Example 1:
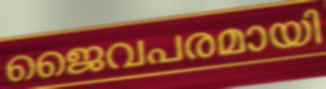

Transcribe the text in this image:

ജൈവപരമായി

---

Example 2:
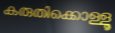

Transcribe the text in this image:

കരുതിക്കൊള്ളൂ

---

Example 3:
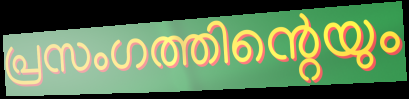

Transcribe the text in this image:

പ്രസംഗത്തിന്റെയും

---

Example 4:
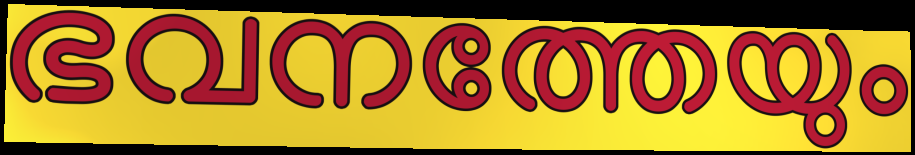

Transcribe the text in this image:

ഭവനത്തേയും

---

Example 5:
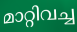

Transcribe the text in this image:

മാറ്റിവച്ച